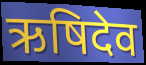
ऋषिदेव